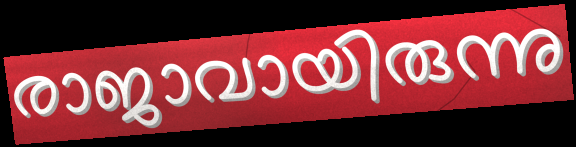
രാജാവായിരുന്നു